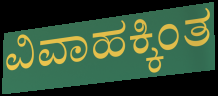
ವಿವಾಹಕ್ಕಿಂತ